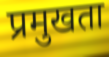
प्रमुखता